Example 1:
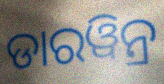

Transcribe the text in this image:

ଡାରୱିନ୍ର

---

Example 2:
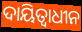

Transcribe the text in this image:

ଦାୟିତ୍ୱାଧୀନ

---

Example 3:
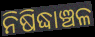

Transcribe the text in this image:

ନିଷିଦ୍ଧାଞ୍ଚଳ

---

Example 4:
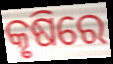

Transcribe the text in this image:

କୃଷିରେ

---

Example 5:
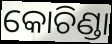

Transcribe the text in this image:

କୋଚିଣ୍ଡା